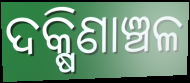
ଦକ୍ଷିଣାଞ୍ଚଳ